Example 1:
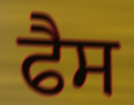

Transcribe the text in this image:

ਫੈਸ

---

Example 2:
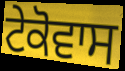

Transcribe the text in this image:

ਟੇਕੋਵਾਸ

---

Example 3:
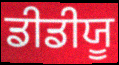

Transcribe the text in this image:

ਡੀਡੀਯੂ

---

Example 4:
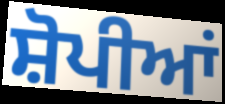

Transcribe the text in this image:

ਸ਼ੋਪੀਆਂ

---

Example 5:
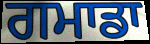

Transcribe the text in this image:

ਗਮਾਡਾ